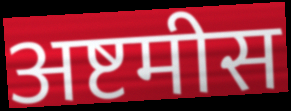
अष्टमीस